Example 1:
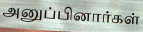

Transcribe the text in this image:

அனுப்பினார்கள்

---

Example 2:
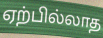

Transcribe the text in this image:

ஏற்பில்லாத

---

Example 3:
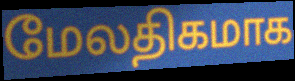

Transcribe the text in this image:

மேலதிகமாக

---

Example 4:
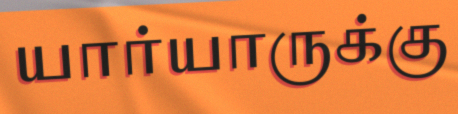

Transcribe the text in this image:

யார்யாருக்கு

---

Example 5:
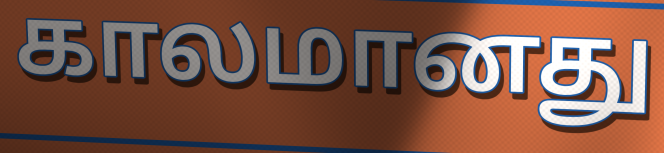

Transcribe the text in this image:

காலமானது